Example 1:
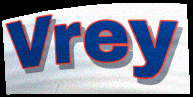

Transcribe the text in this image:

Vrey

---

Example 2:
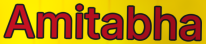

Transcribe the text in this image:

Amitabha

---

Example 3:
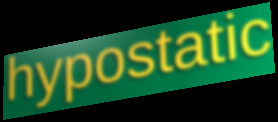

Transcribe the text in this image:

hypostatic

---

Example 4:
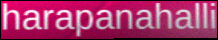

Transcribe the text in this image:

harapanahalli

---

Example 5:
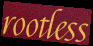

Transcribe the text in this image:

rootless